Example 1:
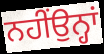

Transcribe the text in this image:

ਨਹੀਂਉਨ੍ਹਾਂ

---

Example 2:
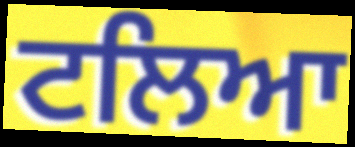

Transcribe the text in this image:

ਟਲਿਆ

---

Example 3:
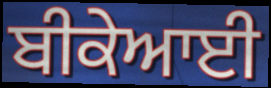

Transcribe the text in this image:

ਬੀਕੇਆਈ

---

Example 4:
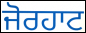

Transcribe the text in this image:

ਜੋਰਹਾਟ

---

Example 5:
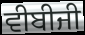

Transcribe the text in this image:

ਵੀਬੀਜੀ